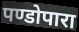
पण्डोपारा